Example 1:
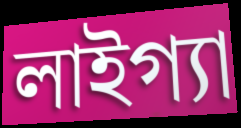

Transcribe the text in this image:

লাইগ্যা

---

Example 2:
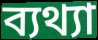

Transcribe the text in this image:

ব্যথ্যা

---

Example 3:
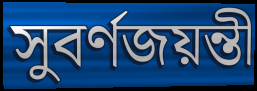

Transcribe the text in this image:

সুবর্ণজয়ন্তী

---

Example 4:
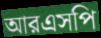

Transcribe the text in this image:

আরএসপি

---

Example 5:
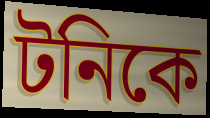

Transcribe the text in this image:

টনিকে